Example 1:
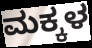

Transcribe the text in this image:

ಮಕ್ಕಳ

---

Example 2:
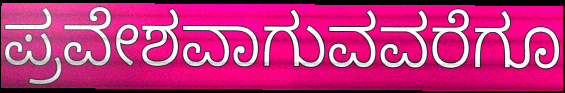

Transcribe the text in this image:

ಪ್ರವೇಶವಾಗುವವರೆಗೂ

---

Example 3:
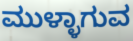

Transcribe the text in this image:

ಮುಳ್ಳಾಗುವ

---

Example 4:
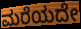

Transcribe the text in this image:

ಮರೆಯದೇ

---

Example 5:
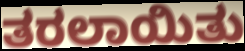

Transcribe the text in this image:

ತರಲಾಯಿತು